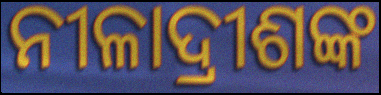
ନୀଳାଦ୍ରୀଶଙ୍କ